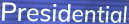
Presidential